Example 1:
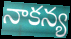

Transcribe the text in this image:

నాకన్య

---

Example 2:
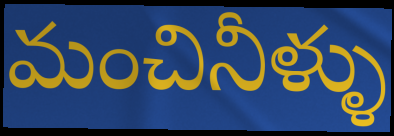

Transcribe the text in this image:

మంచినీళ్ళు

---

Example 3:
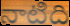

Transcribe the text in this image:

నాటిది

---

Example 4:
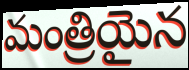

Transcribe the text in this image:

మంత్రియైన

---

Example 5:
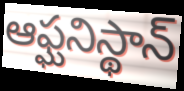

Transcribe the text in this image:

ఆఫ్ఘనిస్థాన్